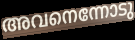
അവനെന്നോടു